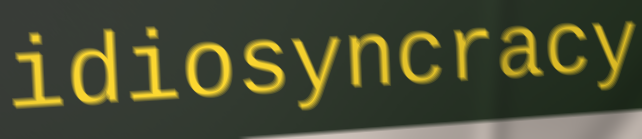
idiosyncracy